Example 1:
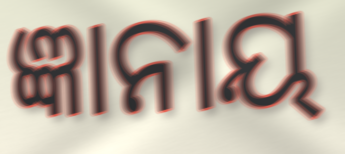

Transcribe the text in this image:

ଜ୍ଞାନାୟ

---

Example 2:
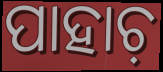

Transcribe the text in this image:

ପାହାଚ଼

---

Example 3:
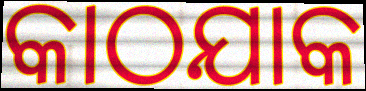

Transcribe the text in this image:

କାଠଯାକ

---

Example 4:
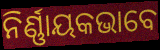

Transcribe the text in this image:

ନିର୍ଣ୍ଣାୟକଭାବେ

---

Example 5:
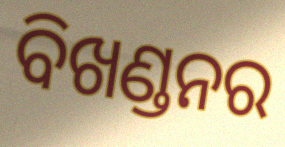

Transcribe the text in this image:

ବିଖଣ୍ଡନର